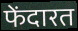
फेंदारत